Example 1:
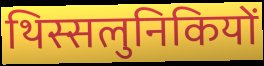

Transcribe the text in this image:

थिस्सलुनिकियों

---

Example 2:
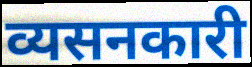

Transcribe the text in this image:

व्यसनकारी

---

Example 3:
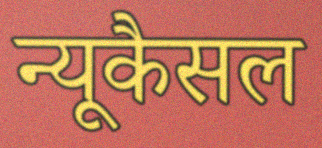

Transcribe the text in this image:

न्यूकैसल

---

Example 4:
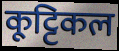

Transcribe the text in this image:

कूट्टिकल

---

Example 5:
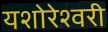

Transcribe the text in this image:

यशोरेश्वरी